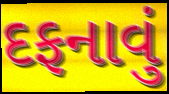
દફનાવું